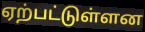
ஏற்பட்டுள்ளன